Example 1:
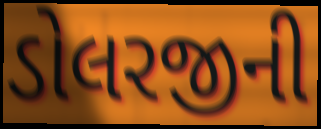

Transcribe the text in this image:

ડોલરજીની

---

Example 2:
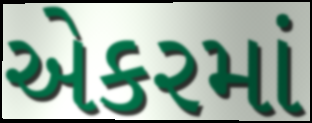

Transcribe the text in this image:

એકરમાં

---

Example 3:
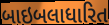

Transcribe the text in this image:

બાઇબલાધારિત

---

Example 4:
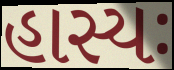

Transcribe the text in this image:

હાસ્યઃ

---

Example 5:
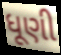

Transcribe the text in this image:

ધૂણી